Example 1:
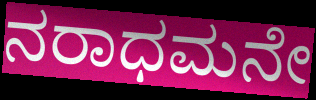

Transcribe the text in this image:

ನರಾಧಮನೇ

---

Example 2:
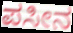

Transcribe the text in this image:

ಪಸೀನ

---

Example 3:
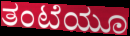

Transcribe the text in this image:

ತಂಟೆಯೂ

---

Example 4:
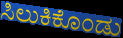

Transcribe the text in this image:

ಸಿಲುಕಿಕೊಂಡು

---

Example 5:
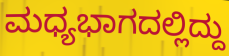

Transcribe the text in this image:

ಮಧ್ಯಭಾಗದಲ್ಲಿದ್ದು